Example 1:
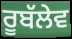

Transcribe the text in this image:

ਰੂਬੱਲੇਵ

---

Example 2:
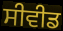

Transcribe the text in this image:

ਸੀਵੀਡ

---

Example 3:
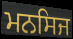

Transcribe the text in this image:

ਮਨਸਿਜ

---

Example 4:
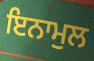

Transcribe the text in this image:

ਇਨਾਮੁਲ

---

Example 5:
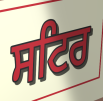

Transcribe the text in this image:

ਸਟਿਰ